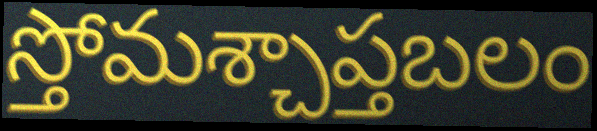
స్తోమశ్చాప్తబలం